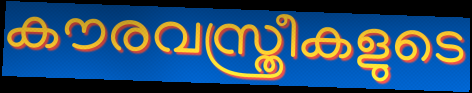
കൗരവസ്ത്രീകളുടെ